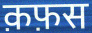
क़फ़स